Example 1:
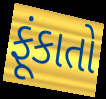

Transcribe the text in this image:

ફૂંકાતો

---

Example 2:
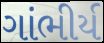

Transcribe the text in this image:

ગાંભીર્ય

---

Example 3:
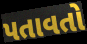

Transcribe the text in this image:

પતાવતો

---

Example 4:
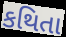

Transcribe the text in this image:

કથિતા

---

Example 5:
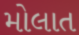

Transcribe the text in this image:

મોલાત